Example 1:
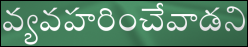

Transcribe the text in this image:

వ్యవహరించేవాడని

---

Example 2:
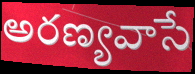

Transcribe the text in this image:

అరణ్యవాసే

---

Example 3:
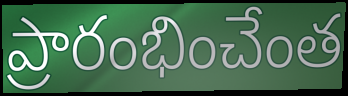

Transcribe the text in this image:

ప్రారంభించేంత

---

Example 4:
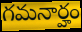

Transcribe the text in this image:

గమనార్హం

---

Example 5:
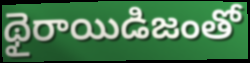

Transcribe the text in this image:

థైరాయిడిజంతో